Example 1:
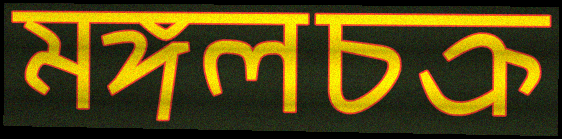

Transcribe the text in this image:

মঙ্গলচক্র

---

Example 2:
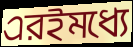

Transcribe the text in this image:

এরইমধ্যে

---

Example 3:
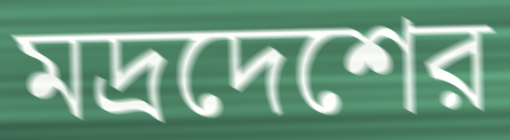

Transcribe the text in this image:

মদ্রদেশের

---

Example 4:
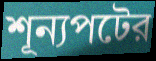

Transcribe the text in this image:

শূন্যপটের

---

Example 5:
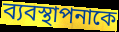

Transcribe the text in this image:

ব্যবস্থাপনাকে